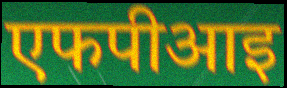
एफपीआइ